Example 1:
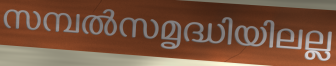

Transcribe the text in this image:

സമ്പൽസമൃദ്ധിയിലല്ല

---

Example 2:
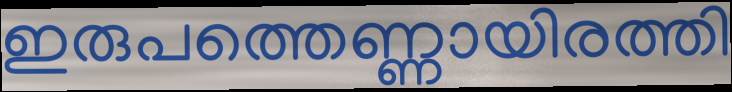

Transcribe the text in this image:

ഇരുപത്തെണ്ണായിരത്തി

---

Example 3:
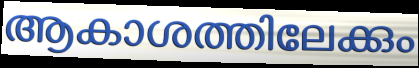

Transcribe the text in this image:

ആകാശത്തിലേക്കും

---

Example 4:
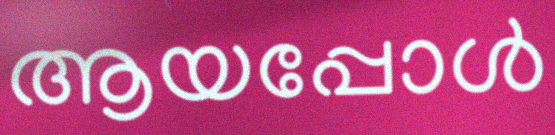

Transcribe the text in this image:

ആയപ്പോൾ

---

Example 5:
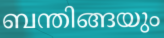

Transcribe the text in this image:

ബന്തിങ്ങയും